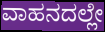
ವಾಹನದಲ್ಲೇ